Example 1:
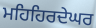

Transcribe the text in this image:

ਮਹਿਹਿਰਦੇਘਰ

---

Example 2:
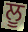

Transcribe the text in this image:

ਲੂ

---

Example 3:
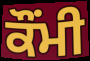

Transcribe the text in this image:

ਕੌਂਮੀ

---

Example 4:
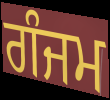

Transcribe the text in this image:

ਗੰਜਮ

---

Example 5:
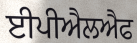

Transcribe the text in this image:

ਈਪੀਐਲਐਫ